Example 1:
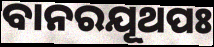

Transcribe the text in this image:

ବାନରଯୂଥପଃ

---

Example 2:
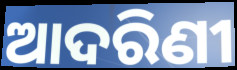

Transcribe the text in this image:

ଆଦରିଣୀ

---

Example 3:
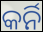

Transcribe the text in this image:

କର୍ନି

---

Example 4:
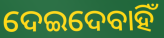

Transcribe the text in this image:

ଦେଇଦେବାହିଁ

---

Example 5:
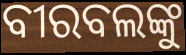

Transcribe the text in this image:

ବୀରବଲଙ୍କୁ